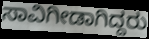
ಸಾವಿಗೀಡಾಗಿದ್ದರು